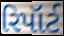
રિપૉર્ટ